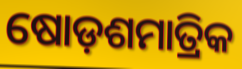
ଷୋଡ଼ଶମାତ୍ରିକ